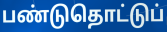
பண்டுதொட்டுப்